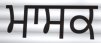
ਮਾਸਕ